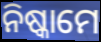
ନିଷ୍କାମେ